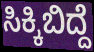
ಸಿಕ್ಕಿಬಿದ್ದೆ